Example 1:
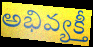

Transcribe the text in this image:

అభివ్యక్తీ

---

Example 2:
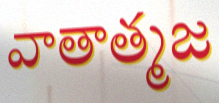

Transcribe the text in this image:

వాతాత్మజ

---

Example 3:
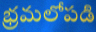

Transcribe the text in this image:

భ్రమలోపడి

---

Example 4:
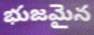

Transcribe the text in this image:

భుజమైన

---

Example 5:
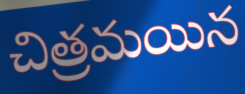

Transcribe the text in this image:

చిత్రమయిన